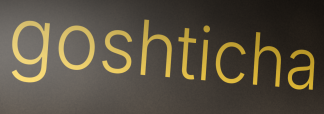
goshticha